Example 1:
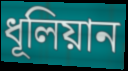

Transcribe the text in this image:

ধূলিয়ান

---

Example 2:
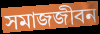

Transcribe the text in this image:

সমাজজীবন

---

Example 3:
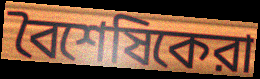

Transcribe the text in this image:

বৈশেষিকেরা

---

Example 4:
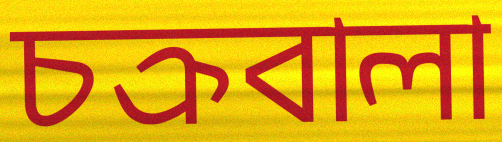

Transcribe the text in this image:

চক্রবালা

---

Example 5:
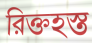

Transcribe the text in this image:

রিক্তহস্ত